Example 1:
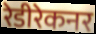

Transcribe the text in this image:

रेडीरेकनर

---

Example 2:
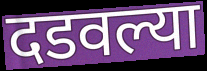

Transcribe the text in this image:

दडवल्या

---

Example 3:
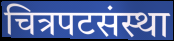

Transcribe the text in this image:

चित्रपटसंस्था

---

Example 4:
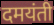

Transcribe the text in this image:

दमयंती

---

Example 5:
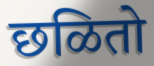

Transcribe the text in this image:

छळितो